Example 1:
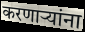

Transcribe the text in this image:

करणाऱ्यांना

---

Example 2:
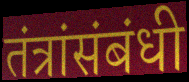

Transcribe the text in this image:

तंत्रांसंबंधी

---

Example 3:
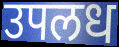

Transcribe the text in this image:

उपलध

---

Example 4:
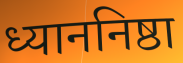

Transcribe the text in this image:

ध्याननिष्ठा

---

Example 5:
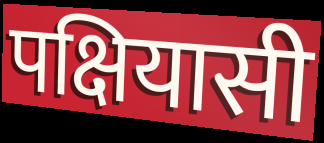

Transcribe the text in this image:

पक्षियासी